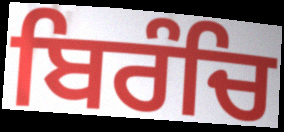
ਬਿਰੰਚਿ